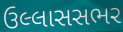
ઉલ્લાસસભર